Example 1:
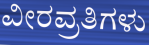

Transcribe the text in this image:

ವೀರವ್ರತಿಗಳು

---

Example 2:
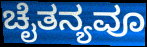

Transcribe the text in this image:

ಚೈತನ್ಯವೂ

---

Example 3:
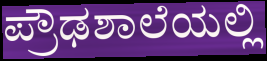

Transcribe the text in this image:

ಪ್ರೌಢಶಾಲೆಯಲ್ಲಿ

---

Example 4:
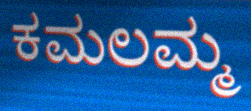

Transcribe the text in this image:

ಕಮಲಮ್ಮ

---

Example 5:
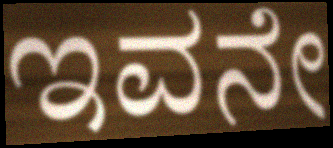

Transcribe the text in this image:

ಇವನೇ